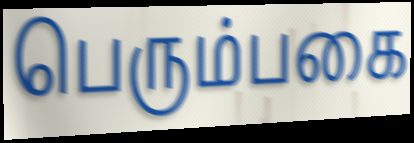
பெரும்பகை